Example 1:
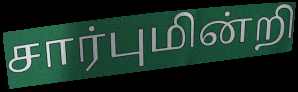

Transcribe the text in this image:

சார்புமின்றி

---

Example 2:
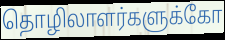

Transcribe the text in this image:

தொழிலாளர்களுக்கோ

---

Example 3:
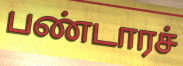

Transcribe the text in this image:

பண்டாரச்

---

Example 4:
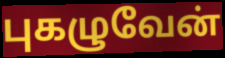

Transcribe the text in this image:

புகழுவேன்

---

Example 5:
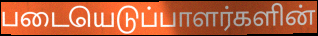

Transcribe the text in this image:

படையெடுப்பாளர்களின்